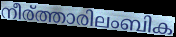
നീര്ത്താരിലംബിക